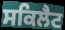
ਸਕਿਲੈਟ